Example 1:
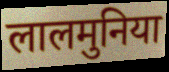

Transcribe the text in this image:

लालमुनिया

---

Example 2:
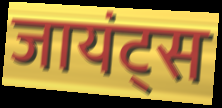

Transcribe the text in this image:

जायंट्स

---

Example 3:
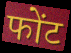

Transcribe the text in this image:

फोंट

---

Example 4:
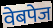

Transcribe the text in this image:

वेबपेज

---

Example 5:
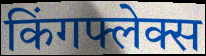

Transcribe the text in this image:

किंगफ्लेक्स